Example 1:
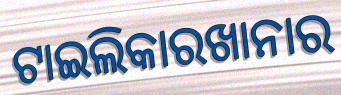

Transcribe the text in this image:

ଟାଇଲିକାରଖାନାର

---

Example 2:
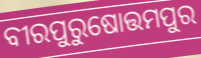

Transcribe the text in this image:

ବୀରପୁରୁଷୋତ୍ତମପୁର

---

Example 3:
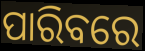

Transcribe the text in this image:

ପାରିବରେ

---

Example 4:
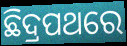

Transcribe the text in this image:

ଛିଦ୍ରପଥରେ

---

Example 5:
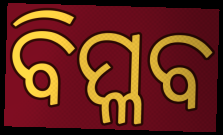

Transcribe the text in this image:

ବିପ୍ଳବ